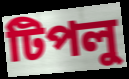
টিপলু